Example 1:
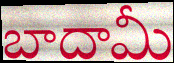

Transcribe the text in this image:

బాదామీ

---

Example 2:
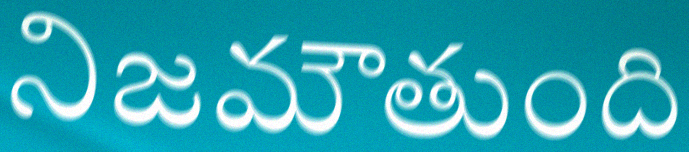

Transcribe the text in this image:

నిజమౌతుంది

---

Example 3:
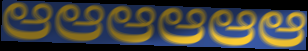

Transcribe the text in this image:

ఆఆఆఆఆఆ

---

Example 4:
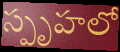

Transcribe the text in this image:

స్పృహలో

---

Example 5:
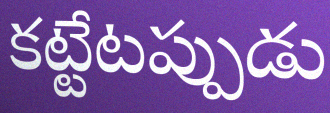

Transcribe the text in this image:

కట్టేటప్పుడు